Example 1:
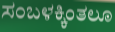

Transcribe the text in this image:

ಸಂಬಳಕ್ಕಿಂತಲೂ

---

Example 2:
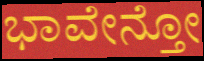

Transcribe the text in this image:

ಭಾವೇನ್ತೋ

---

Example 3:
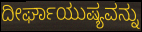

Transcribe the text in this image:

ದೀರ್ಘಾಯುಷ್ಯವನ್ನು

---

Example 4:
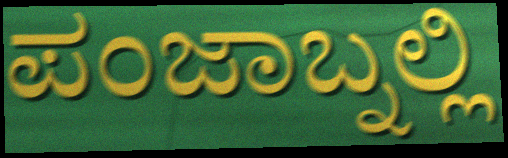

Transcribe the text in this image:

ಪಂಜಾಬ್ನಲ್ಲಿ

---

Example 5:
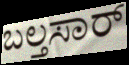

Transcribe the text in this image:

ಬಲ್ತಸಾರ್